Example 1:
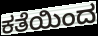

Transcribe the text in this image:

ಕತೆಯಿಂದ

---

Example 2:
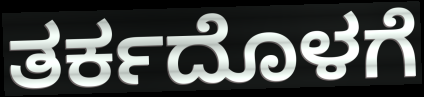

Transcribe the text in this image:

ತರ್ಕದೊಳಗೆ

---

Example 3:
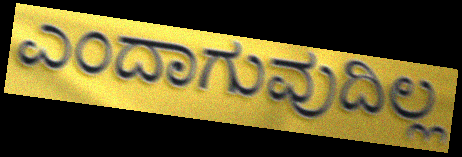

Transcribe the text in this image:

ಎಂದಾಗುವುದಿಲ್ಲ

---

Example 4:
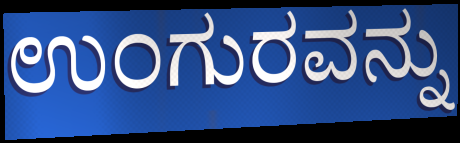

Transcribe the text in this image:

ಉಂಗುರವನ್ನು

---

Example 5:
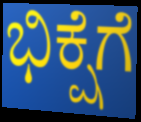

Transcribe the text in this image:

ಭಿಕ್ಷೆಗೆ